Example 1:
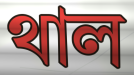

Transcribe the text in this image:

থাল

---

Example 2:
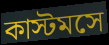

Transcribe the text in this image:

কাস্টমসে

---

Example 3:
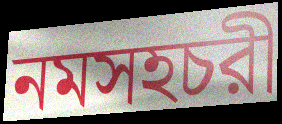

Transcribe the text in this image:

নমসহচরী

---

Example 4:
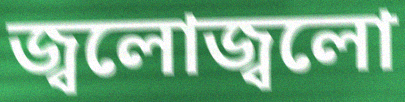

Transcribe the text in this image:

জ্বলোজ্বলো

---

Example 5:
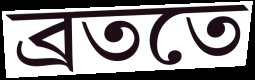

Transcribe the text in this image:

ব্রততে